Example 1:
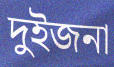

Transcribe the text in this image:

দুইজনা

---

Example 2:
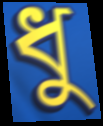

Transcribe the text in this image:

ধু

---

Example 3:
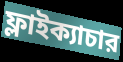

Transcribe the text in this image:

ফ্লাইক্যাচার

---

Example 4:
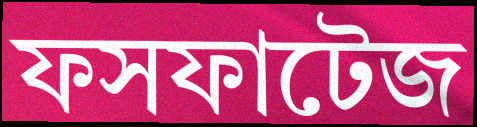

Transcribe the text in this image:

ফসফাটেজ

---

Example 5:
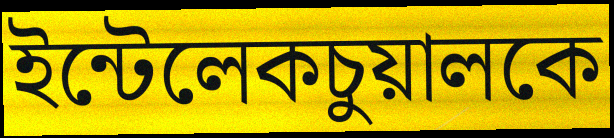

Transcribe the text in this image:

ইন্টেলেকচুয়ালকে